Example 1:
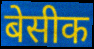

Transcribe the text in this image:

बेसीक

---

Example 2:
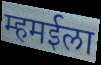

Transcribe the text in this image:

म्हमईला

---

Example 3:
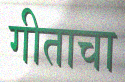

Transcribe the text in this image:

गीताचा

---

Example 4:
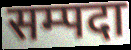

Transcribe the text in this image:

सम्पदा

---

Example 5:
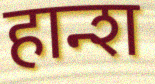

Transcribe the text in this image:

हान्श